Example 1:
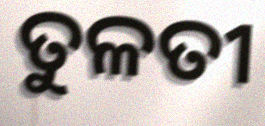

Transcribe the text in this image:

ତୁଳତୀ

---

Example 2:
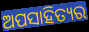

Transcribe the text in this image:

ଅପସାହିତ୍ୟର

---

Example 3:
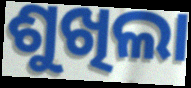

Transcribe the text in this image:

ଶୁଖିଲା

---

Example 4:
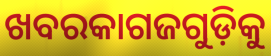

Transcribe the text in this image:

ଖବରକାଗଜଗୁଡ଼ିକୁ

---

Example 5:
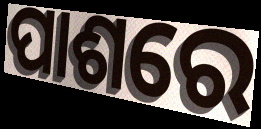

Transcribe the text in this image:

ପାଶରେ